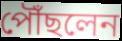
পৌঁছলেন